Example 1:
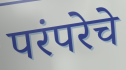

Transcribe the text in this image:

परंपरेचे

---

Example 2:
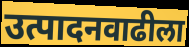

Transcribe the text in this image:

उत्पादनवाढीला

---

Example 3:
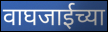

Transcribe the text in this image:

वाघजाईच्या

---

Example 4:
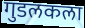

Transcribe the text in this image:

गुडलकला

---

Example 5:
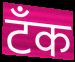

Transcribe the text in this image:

टॅंक